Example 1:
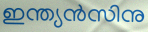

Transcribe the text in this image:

ഇന്ത്യൻസിനു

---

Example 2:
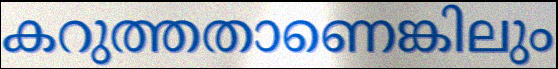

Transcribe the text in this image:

കറുത്തതാണെങ്കിലും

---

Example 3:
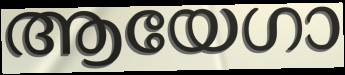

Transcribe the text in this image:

ആയേഗാ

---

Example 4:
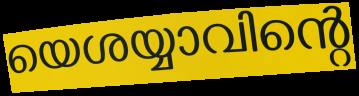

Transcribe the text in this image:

യെശയ്യാവിന്റെ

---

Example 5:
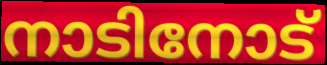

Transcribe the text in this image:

നാടിനോട്